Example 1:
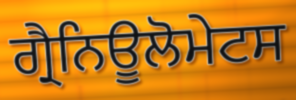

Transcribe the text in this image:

ਗ੍ਰੈਨਿਊਲੋਮੇਟਸ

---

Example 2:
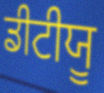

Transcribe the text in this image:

ਡੀਟੀਯੂ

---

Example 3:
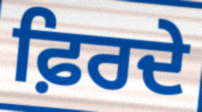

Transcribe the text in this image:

ਫ਼ਿਰਦੇ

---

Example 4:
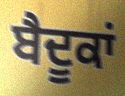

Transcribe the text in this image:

ਬੈਦੂਕਾਂ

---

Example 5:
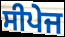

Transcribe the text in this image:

ਸੀਪੇਜ